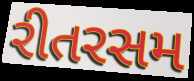
રીતરસમ